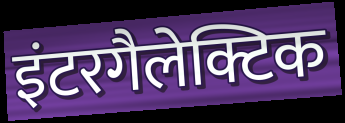
इंटरगैलेक्टिक